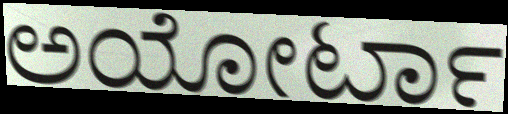
ಅಯೋರ್ಟಾ